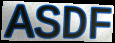
ASDF